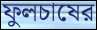
ফুলচাষের